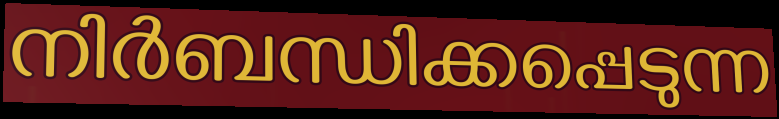
നിർബന്ധിക്കപ്പെടുന്ന